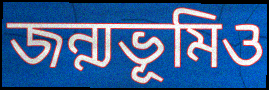
জন্মভূমিও